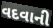
વદવાની